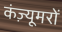
कंज़्यूमरों